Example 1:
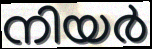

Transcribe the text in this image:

നിയർ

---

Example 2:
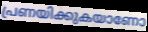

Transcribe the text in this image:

പ്രണയിക്കുകയാണോ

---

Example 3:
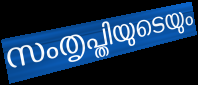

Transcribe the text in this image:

സംതൃപ്തിയുടെയും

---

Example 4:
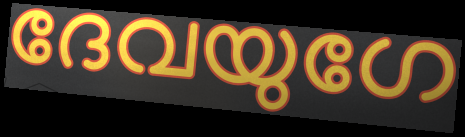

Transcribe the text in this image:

ദേവയുഗേ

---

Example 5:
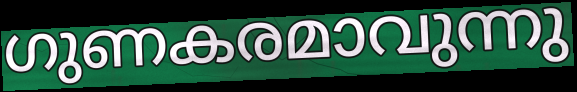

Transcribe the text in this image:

ഗുണകരമാവുന്നു